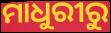
ମାଧୁରୀରୁ